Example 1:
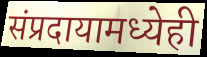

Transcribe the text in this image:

संप्रदायामध्येही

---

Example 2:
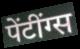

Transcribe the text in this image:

पेंटींग्स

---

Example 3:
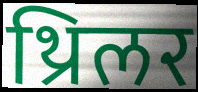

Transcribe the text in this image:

थ्रिलर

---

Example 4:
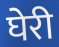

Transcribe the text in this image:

घेरी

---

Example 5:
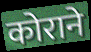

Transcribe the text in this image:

कोराने